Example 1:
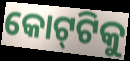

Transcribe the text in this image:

କୋଟ୍‌ଟିକୁ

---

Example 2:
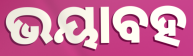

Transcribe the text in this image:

ଭୟାବହ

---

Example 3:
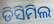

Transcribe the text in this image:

ଡିସିମିଲ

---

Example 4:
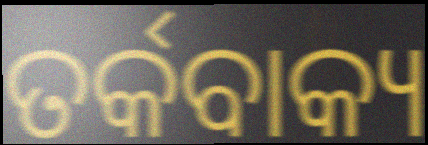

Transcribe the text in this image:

ତର୍କବାକ୍ୟ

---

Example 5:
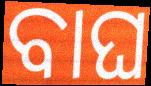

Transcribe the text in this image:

ବାଘ